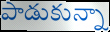
పాడుకున్నా